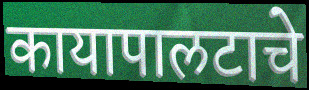
कायापालटाचे